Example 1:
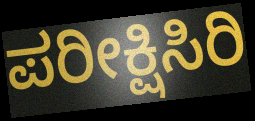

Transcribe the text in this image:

ಪರೀಕ್ಷಿಸಿರಿ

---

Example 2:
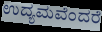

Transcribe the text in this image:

ಉದ್ಯಮವೆಂದರೆ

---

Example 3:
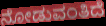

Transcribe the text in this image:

ನೋಡುವಂತಿದೆ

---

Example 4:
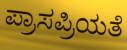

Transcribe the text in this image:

ಪ್ರಾಸಪ್ರಿಯತೆ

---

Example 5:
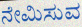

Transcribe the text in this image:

ನೇಮಿಸುವ